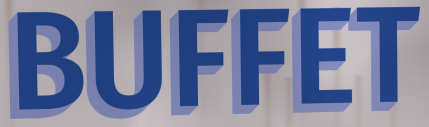
BUFFET